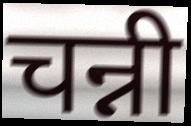
चन्नी